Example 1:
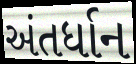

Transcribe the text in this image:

અંતર્ધાન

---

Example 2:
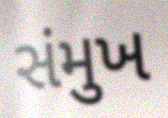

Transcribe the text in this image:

સંમુખ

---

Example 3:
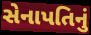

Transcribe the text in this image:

સેનાપતિનું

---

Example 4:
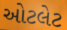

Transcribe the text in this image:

ઓટલેટ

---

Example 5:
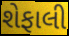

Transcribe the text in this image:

શેફાલી